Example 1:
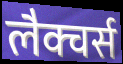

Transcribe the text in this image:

लैक्चर्स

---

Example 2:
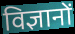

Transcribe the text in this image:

विज्ञानों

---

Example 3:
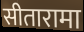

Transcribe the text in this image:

सीतारामा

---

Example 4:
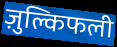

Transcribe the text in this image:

ज़ुल्किफली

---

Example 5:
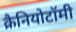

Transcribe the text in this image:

क्रैनियोटॉमी